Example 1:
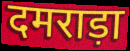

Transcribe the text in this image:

दमराड़ा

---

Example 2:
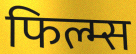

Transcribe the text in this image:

फिल्म्स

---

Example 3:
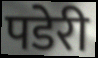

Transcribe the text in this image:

पडेरी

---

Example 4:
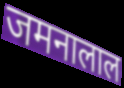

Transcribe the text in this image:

जमनालाल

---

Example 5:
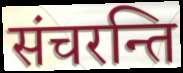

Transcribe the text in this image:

संचरन्ति